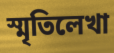
স্মৃতিলেখা